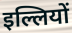
इल्लियों